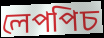
লেপপিচ